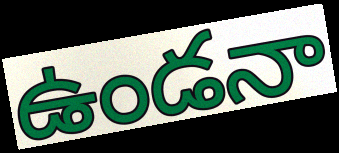
ఉండనా